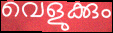
വെളുക്കും